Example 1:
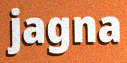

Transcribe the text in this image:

jagna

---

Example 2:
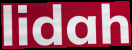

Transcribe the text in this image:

lidah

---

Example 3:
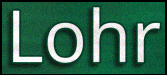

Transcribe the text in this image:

Lohr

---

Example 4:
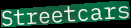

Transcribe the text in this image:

Streetcars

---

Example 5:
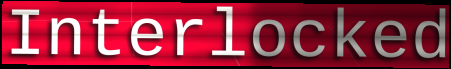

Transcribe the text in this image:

Interlocked